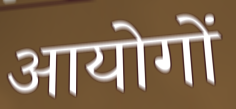
आयोगों